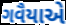
ગવૈયાએ